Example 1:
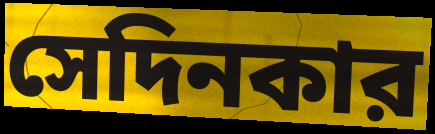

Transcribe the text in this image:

সেদিনকার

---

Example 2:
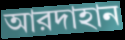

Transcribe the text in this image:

আরদাহান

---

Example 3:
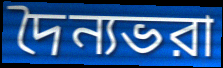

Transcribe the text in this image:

দৈন্যভরা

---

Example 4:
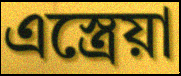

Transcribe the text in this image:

এস্ত্রেয়া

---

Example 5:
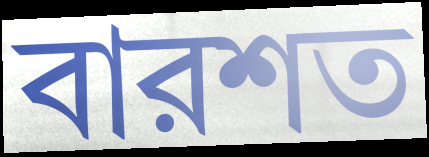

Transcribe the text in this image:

বারশত